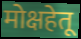
मोक्षहेतू